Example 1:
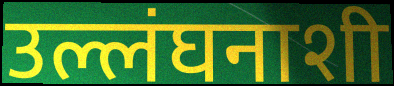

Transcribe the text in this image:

उल्लंघनाशी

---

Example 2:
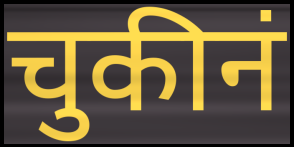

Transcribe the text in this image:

चुकीनं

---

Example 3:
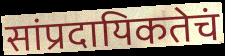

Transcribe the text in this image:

सांप्रदायिकतेचं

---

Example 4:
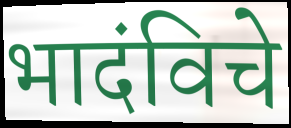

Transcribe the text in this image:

भादंविचे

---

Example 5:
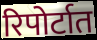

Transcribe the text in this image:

रिपोर्टात